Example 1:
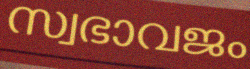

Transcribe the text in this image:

സ്വഭാവജം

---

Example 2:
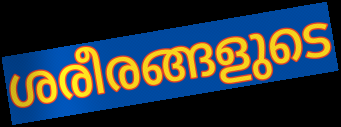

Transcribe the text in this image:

ശരീരങ്ങളുടെ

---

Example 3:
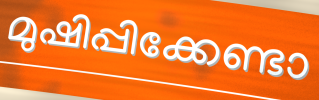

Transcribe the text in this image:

മുഷിപ്പിക്കേണ്ടാ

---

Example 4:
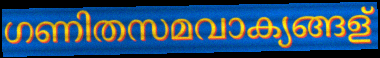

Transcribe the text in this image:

ഗണിതസമവാക്യങ്ങള്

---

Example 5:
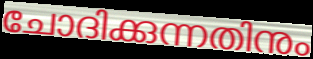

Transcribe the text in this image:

ചോദിക്കുന്നതിനും